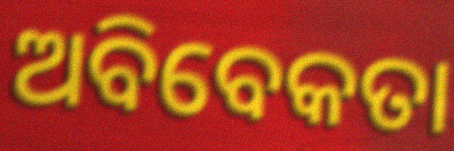
ଅବିବେକତା